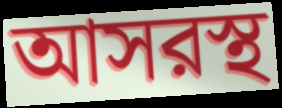
আসরস্থ